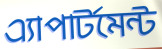
এ্যাপার্টমেন্ট